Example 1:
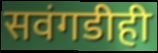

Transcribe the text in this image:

सवंगडीही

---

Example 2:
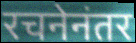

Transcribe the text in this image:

रचनेनंतर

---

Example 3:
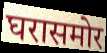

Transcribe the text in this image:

घरासमोर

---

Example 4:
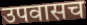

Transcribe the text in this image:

उपवासच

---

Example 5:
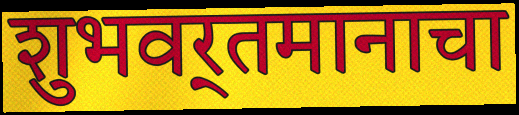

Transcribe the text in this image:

शुभवर्तमानाचा